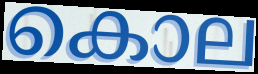
കൊല